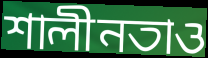
শালীনতাও